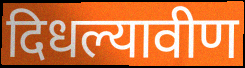
दिधल्यावीण